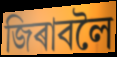
জিৰাবলৈ